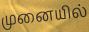
முனையில்